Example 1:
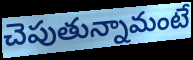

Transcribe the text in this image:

చెపుతున్నామంటే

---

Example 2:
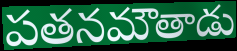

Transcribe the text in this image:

పతనమౌతాడు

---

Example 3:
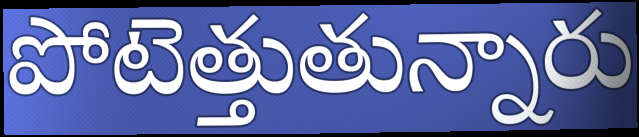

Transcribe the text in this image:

పోటెత్తుతున్నారు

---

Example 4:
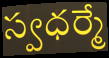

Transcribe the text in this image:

స్వధర్మే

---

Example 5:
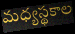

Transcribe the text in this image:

మధ్యస్థకాల